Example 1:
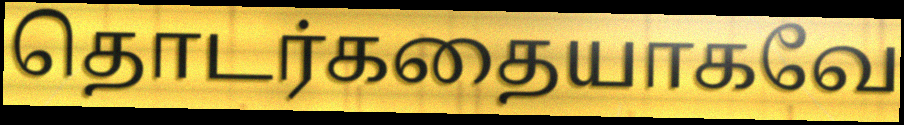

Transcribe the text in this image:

தொடர்கதையாகவே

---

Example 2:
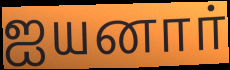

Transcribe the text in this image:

ஐயனார்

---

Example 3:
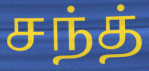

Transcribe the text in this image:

சந்த்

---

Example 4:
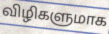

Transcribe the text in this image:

விழிகளுமாக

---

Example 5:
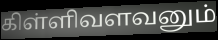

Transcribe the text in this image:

கிள்ளிவளவனும்